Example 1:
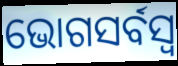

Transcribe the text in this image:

ଭୋଗସର୍ବସ୍ୱ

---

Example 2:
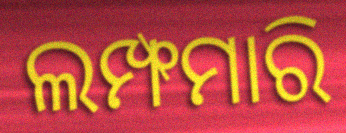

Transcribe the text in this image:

ଲମ୍ଫମାରି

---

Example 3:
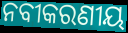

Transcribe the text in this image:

ନବୀକରଣୀୟ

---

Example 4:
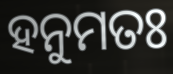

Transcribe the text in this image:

ହନୁମତଃ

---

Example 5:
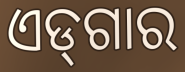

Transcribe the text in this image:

ଏଡ୍‌ଗାର